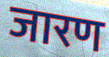
जारण